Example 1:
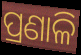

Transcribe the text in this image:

ପ୍ରଣାଳି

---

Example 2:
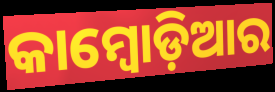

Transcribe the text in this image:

କାମ୍ବୋଡ଼ିଆର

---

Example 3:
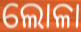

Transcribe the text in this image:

ଲୋଳା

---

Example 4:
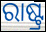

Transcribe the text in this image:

ରାଷ୍ଟ୍ର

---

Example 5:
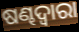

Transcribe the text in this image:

ଷଣ୍ଢଦ୍ୱାରା